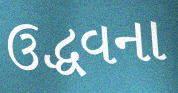
ઉદ્ધવના